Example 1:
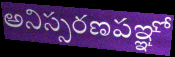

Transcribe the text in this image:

అనిస్సరణపఞ్ఞో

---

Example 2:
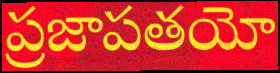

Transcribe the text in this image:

ప్రజాపతయో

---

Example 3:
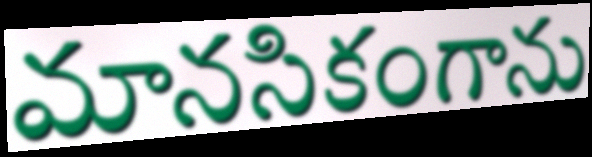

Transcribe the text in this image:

మానసికంగాను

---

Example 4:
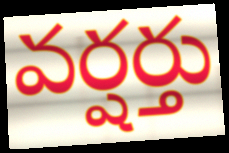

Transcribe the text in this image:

వర్షర్తు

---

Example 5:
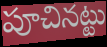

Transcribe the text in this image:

పూచినట్టు